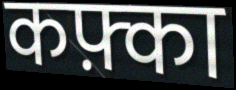
कफ़्का